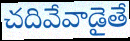
చదివేవాడైతే